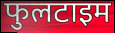
फुलटाइम